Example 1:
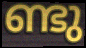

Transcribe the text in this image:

ണ്ടു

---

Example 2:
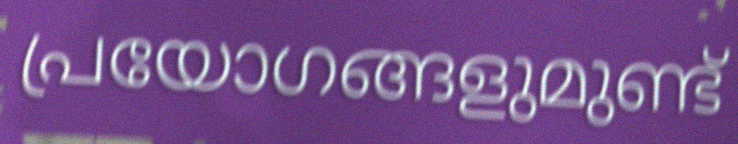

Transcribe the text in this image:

പ്രയോഗങ്ങളുമുണ്ട്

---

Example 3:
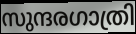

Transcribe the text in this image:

സുന്ദരഗാത്രി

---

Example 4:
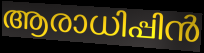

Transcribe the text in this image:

ആരാധിപ്പിൻ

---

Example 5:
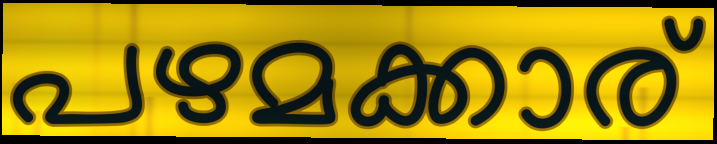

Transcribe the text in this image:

പഴമക്കാര്